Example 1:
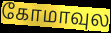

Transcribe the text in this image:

கோமாவுல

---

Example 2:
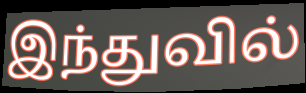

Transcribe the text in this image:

இந்துவில்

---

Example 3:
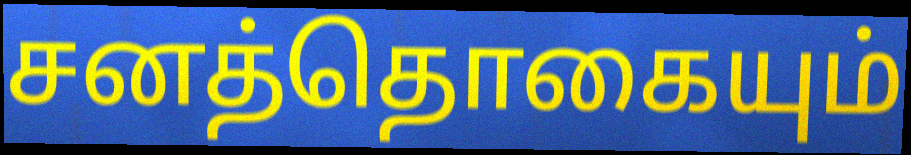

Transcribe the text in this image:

சனத்தொகையும்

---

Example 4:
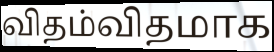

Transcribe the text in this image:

விதம்விதமாக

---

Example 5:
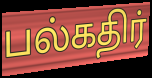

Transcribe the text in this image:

பல்கதிர்